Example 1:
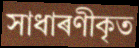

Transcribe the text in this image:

সাধাৰণীকৃত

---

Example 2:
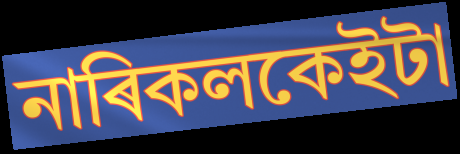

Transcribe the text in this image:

নাৰিকলকেইটা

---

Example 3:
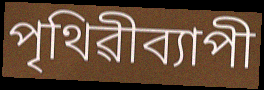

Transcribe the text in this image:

পৃথিৱীব্যাপী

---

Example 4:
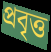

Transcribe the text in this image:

প্ৰবৃত্ত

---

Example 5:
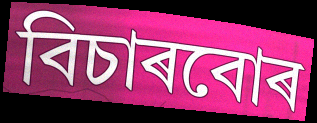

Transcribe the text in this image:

বিচাৰবোৰ